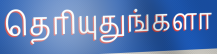
தெரியுதுங்களா